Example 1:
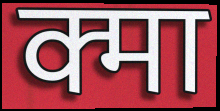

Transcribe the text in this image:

क्मा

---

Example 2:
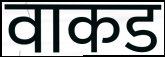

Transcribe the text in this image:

वाकड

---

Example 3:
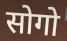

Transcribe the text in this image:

सोगो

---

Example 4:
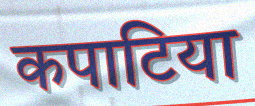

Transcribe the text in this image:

कपाटिया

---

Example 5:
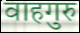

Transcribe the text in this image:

वाहगुरु